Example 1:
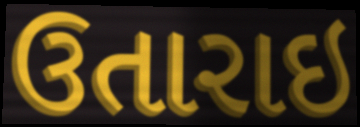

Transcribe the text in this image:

ઉતારાઇ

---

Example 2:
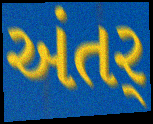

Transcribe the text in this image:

અંતર્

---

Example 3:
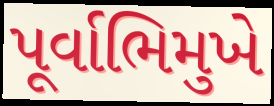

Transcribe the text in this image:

પૂર્વાભિમુખે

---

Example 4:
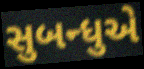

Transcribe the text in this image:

સુબન્ધુએ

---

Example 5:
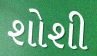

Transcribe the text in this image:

શોશી